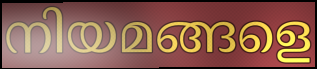
നിയമങ്ങളെ